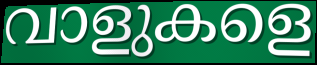
വാളുകളെ